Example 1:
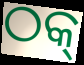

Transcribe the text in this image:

ଠକ୍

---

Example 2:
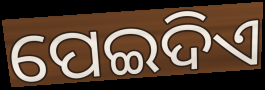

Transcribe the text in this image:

ପେଇଦିଏ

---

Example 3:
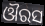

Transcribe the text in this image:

ଔରସ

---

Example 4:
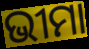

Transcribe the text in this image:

ଭୀମା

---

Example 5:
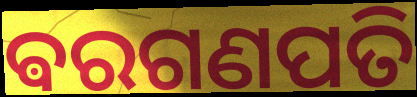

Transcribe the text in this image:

ଵରଗଣପତି